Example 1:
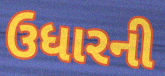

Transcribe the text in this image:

ઉધારની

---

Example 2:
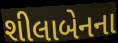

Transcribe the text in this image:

શીલાબેનના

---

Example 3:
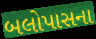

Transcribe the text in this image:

બલોપાસના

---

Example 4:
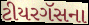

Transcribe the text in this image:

ટીયરગૅસના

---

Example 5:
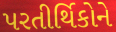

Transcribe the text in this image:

પરતીર્થિકોને